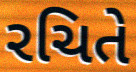
રચિતે